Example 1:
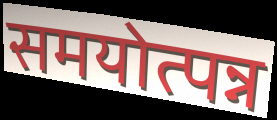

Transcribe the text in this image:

समयोत्पन्न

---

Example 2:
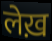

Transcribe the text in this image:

लेख़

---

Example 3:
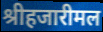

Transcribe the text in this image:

श्रीहजारीमल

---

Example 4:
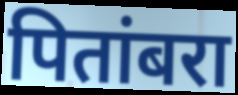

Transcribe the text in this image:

पितांबरा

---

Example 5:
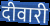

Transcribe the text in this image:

दीवारी